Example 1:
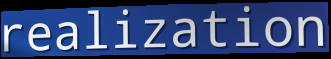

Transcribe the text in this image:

realization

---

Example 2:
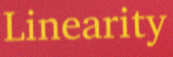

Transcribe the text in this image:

Linearity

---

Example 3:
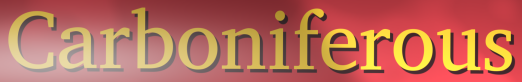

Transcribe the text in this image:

Carboniferous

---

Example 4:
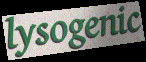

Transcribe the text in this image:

lysogenic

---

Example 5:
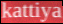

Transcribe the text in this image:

kattiya